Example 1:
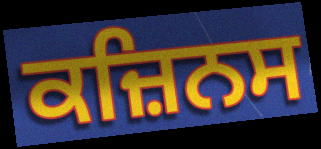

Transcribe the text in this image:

ਕਜ਼ਿਨਸ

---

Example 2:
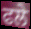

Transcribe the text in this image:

ਫਲੇ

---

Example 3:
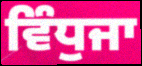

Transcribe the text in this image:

ਵਿੰਧੁਜਾ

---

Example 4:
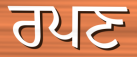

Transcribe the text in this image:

ਰਪਣ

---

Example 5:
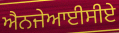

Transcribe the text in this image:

ਐਨਜੇਆਈਸੀਏ